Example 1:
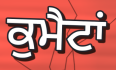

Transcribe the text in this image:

ਕੁਮੈਟਾਂ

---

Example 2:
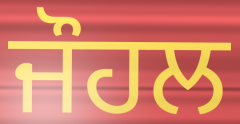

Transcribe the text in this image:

ਜੌਹਲ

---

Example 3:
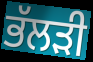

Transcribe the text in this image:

ਭੱਲੜੀ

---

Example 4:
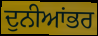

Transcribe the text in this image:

ਦੁਨੀਆਂਭਰ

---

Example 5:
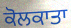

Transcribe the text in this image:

ਕੋਲਕਾਤਾ